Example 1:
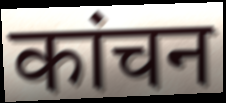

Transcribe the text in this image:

कांचन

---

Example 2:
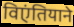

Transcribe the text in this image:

विएंतियाने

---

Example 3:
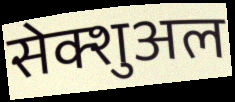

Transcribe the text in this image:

सेक्शुअल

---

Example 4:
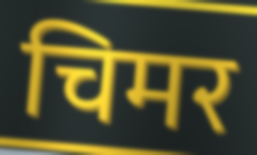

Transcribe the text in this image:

चिमर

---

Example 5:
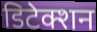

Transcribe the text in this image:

डिटेक्शन